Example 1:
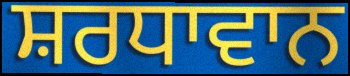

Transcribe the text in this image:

ਸ਼ਰਧਾਵਾਨ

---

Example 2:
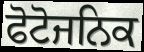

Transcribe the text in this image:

ਫੋਟੋਜਨਿਕ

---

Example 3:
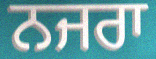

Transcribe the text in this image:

ਨਜਰਾ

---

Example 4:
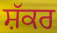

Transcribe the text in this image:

ਸ਼ੱਕਰ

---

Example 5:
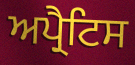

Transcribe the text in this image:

ਅਪ੍ਰੈਟਿਸ